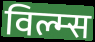
विल्म्स